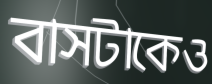
বাসটাকেও